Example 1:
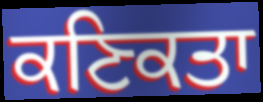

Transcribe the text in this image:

ਕਣਿਕਤਾ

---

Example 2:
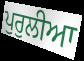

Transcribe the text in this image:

ਪੁਰੁਲੀਆ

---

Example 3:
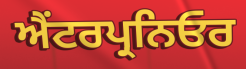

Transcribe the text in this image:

ਐਂਟਰਪ੍ਰਨਿਓਰ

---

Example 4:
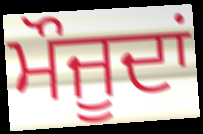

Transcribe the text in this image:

ਮੌਜੂਦਾਂ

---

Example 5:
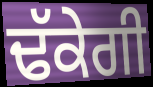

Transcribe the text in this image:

ਢੱਕੇਗੀ